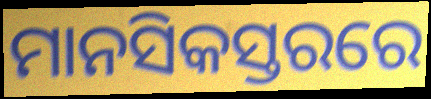
ମାନସିକସ୍ତରରେ